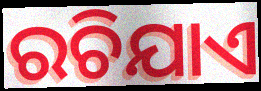
ରଚିଯାଏ